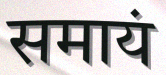
समायं